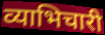
व्याभिचारी